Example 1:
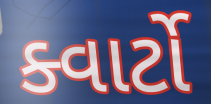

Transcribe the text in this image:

ક્વાર્ટો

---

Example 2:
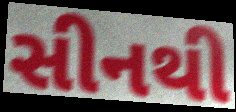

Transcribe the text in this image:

સીનથી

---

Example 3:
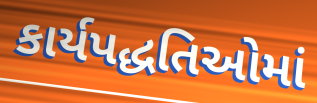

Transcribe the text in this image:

કાર્યપદ્ધતિઓમાં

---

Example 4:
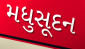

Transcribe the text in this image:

મધુસૂદન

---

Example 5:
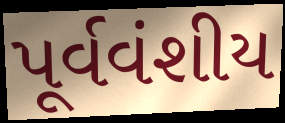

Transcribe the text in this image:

પૂર્વવંશીય